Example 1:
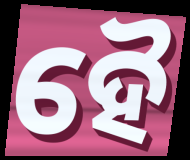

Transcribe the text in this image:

ହୈ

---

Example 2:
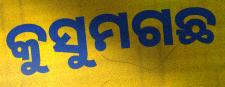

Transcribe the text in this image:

କୁସୁମଗଛ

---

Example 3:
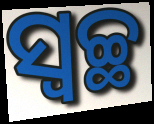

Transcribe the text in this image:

ସ୍ୱଚ୍ଛ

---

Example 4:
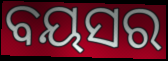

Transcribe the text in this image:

ବୟସର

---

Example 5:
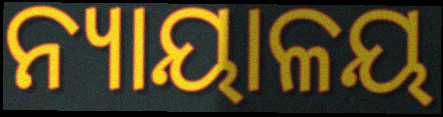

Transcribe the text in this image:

ନ୍ୟାୟାଳୟ